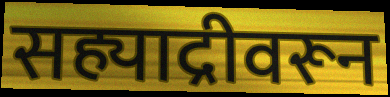
सह्याद्रीवरून